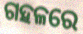
ଗହଳରେ